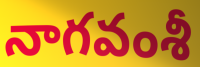
నాగవంశీ